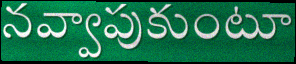
నవ్వాపుకుంటూ